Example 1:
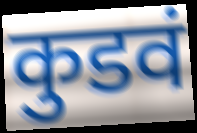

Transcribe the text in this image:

कुडवं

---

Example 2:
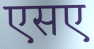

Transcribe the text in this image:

एसए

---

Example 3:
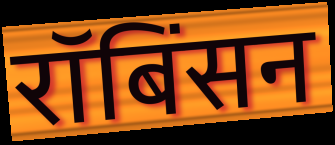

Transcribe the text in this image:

रॉबिंसन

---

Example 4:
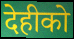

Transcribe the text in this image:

देहीको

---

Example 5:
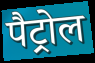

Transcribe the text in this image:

पैट्रोल